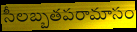
సీలబ్బతపరామాసం